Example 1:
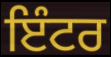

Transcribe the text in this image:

ਇੰਟਰ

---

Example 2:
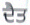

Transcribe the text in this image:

ਦੈਤ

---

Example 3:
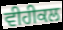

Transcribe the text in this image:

ਵੀਹੀਕਲ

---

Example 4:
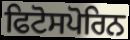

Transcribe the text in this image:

ਫਿਟੋਸਪੋਰਿਨ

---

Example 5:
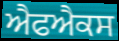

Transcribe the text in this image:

ਐਫਐਕਸ